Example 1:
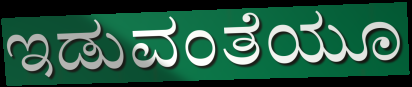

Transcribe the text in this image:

ಇಡುವಂತೆಯೂ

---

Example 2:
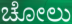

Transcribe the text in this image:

ಚೋಲು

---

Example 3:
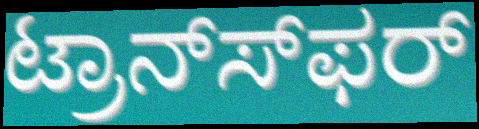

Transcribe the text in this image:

ಟ್ರಾನ್ಸ್‍ಫರ್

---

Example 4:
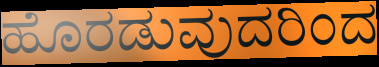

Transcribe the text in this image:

ಹೊರಡುವುದರಿಂದ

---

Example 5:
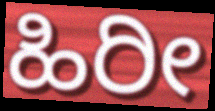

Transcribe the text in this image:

ಹಿರೀ